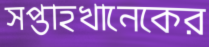
সপ্তাহখানেকের